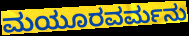
ಮಯೂರವರ್ಮನು